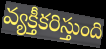
వ్యక్తీకరిస్తుంది